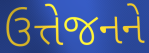
ઉત્તેજનને